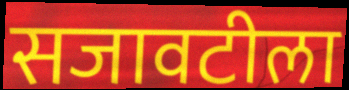
सजावटीला